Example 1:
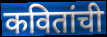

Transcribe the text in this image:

कवितांची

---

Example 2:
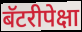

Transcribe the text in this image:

बॅटरीपेक्षा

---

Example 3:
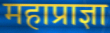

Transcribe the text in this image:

महाप्राज्ञा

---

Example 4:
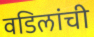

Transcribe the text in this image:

वडिलांची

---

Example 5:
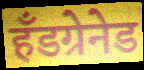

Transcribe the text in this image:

हॅंडग्रेनेड